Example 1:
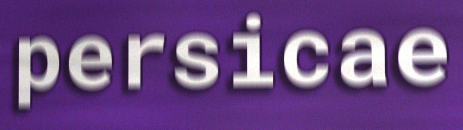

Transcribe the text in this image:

persicae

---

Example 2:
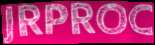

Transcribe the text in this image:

JRPROC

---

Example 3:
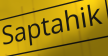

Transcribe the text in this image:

Saptahik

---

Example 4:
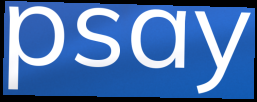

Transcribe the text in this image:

psay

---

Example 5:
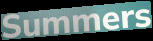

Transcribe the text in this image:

Summers